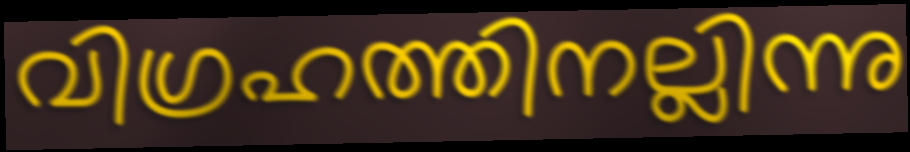
വിഗ്രഹത്തിനല്ലിന്നു